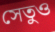
সেতুও